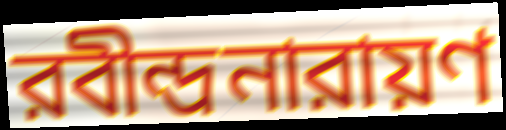
রবীন্দ্রনারায়ণ